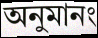
অনুমানং